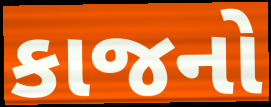
કાજનો